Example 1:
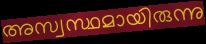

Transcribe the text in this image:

അസ്വസ്ഥമായിരുന്നു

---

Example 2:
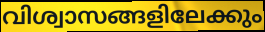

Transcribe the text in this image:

വിശ്വാസങ്ങളിലേക്കും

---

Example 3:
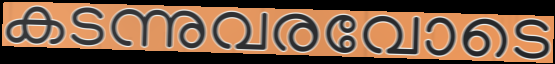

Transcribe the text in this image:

കടന്നുവരവോടെ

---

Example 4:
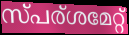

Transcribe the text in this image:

സ്പര്ശമേറ്റ്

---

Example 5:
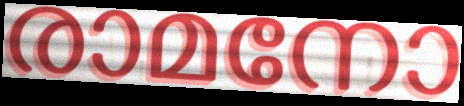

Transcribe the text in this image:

രാമനോ